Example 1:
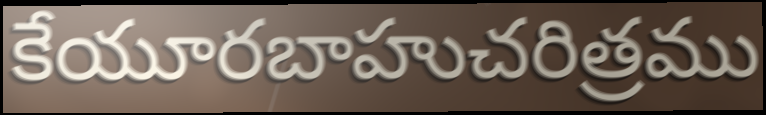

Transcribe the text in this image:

కేయూరబాహుచరిత్రము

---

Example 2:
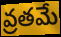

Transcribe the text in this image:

వ్రతమే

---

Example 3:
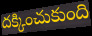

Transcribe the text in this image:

దక్కించుకుంది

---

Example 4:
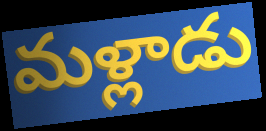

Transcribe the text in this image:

మళ్లాడు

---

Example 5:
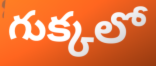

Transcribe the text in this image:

గుక్కలో